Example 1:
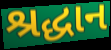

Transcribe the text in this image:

શ્રદ્ધાન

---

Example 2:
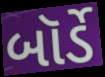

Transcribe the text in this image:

બૉર્ડે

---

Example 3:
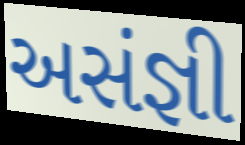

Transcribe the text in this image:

અસંજ્ઞી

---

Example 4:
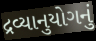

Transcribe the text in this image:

દ્રવ્યાનુયોગનું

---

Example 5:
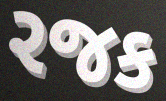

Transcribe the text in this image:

રજક